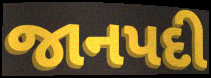
જાનપદી